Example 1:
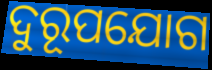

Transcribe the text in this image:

ଦୁରୂପଯୋଗ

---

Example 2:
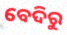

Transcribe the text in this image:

ବେଦିରୁ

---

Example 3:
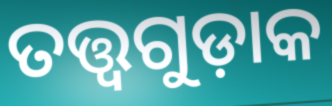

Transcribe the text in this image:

ତତ୍ତ୍ୱଗୁଡ଼ାକ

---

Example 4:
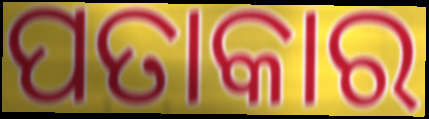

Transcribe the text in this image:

ପତାକାର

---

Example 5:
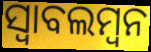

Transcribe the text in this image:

ସ୍ୱାବଲମ୍ବନ